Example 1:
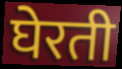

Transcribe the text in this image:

घेरती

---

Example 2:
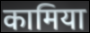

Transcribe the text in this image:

कामिया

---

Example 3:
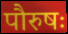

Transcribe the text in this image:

पौरुषः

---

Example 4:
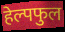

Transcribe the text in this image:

हेल्पफुल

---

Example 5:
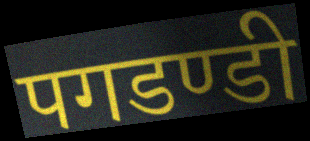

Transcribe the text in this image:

पगडण्डी